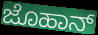
ಜೊಹಾನ್